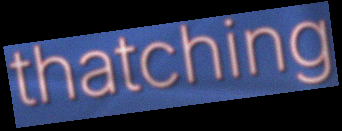
thatching